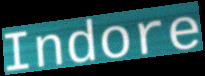
Indore